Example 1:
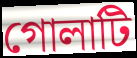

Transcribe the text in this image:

গোলাটি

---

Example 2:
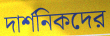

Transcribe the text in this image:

দার্শনিকদের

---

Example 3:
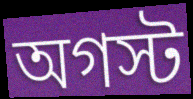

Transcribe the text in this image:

অগস্ট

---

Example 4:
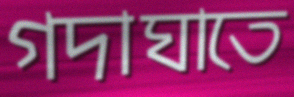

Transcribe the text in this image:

গদাঘাতে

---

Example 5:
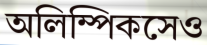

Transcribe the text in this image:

অলিম্পিকসেও